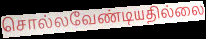
சொல்லவேண்டியதில்லை